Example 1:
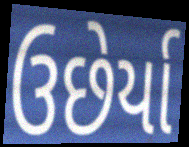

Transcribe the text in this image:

ઉછેર્યા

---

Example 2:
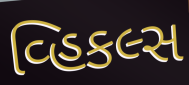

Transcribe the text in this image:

વ્હિકલ્સ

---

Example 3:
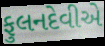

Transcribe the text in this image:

ફુલનદેવીએ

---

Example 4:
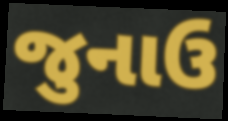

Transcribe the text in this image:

જુનાઉ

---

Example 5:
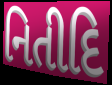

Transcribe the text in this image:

નિતીદિ